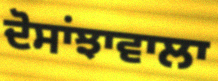
ਦੋਸਾਂਝਾਵਾਲਾ